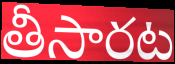
తీసారట